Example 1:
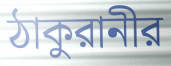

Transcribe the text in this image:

ঠাকুরানীর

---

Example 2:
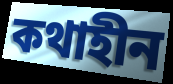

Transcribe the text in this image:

কথাহীন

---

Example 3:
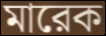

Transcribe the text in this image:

মারেক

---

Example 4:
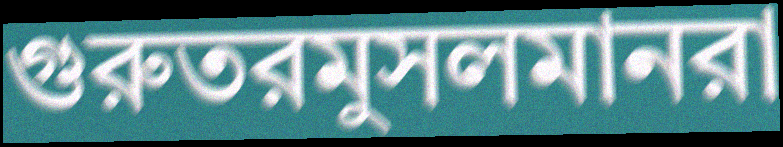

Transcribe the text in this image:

গুরুতরমুসলমানরা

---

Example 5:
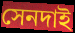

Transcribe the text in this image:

সেনদাই